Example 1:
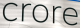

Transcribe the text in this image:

crore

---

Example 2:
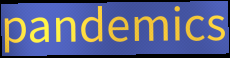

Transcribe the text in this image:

pandemics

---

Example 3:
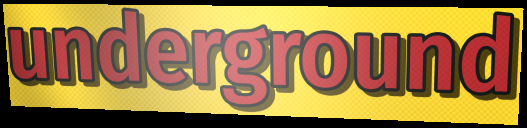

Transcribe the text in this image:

underground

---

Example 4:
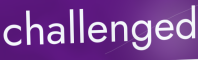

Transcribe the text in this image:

challenged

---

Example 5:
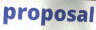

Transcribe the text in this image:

proposal